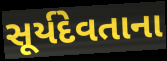
સૂર્યદેવતાના